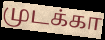
முடக்கா